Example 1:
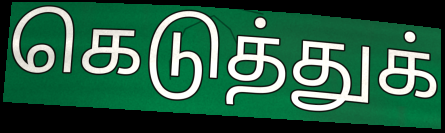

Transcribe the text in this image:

கெடுத்துக்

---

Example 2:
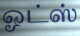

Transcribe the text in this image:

ஓட்ஸ்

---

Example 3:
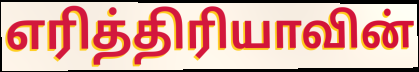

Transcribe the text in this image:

எரித்திரியாவின்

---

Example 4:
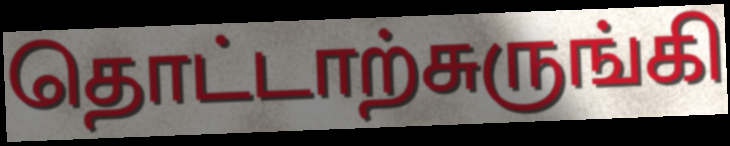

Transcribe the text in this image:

தொட்டாற்சுருங்கி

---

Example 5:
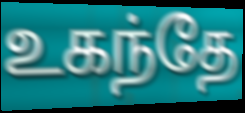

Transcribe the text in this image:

உகந்தே